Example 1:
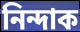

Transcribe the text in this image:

নিন্দাক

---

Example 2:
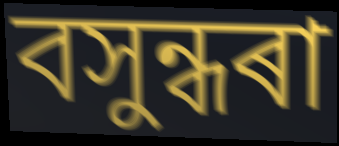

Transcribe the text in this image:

বসুন্ধৰা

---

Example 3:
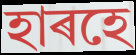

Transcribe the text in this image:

হাৰহে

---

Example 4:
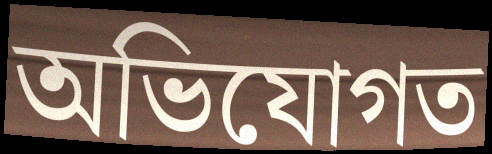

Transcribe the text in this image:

অভিযোগত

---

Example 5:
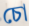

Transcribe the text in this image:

চো